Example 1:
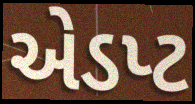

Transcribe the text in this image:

એડપ્ટ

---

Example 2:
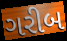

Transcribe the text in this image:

ગરીબ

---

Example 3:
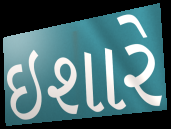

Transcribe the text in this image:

ઇશારે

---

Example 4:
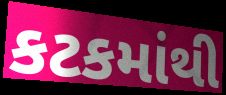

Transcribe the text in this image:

કટકમાંથી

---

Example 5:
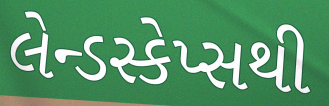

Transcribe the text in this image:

લેન્ડસ્કેપ્સથી